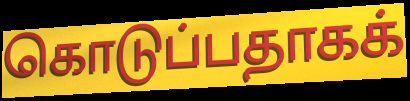
கொடுப்பதாகக்